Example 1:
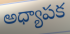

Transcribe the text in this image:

అధ్యాపక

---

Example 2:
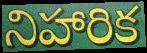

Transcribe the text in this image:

నిహారిక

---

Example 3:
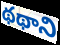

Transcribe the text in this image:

థథాని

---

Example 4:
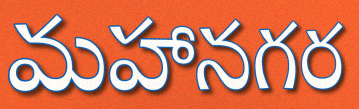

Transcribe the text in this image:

మహానగర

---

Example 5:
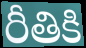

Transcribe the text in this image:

రీతికి